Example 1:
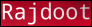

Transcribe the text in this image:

Rajdoot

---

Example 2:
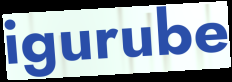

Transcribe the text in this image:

igurube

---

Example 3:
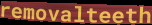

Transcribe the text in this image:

removalteeth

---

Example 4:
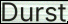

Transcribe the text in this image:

Durst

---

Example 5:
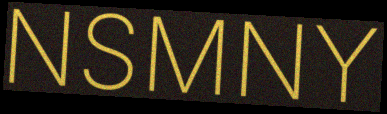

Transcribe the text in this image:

NSMNY